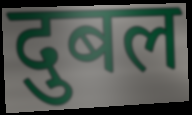
दुबल